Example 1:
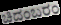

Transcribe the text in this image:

ಚಿದಂಬರಂ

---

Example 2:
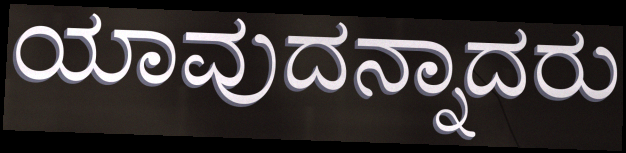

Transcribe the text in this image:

ಯಾವುದನ್ನಾದರು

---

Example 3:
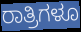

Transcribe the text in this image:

ರಾತ್ರಿಗಳೂ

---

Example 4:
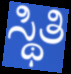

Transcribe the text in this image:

ಸ್ಥಿತಿ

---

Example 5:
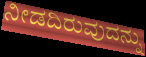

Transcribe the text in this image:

ನೀಡದಿರುವುದನ್ನು